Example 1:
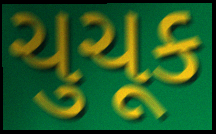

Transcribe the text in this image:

ચુચૂક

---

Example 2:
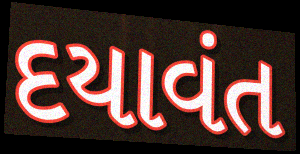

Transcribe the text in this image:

દયાવંત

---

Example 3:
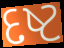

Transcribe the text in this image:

દષ્ટ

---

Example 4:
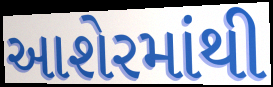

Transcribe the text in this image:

આશેરમાંથી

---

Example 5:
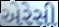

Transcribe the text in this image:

એરેસી